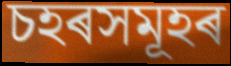
চহৰসমূহৰ